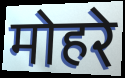
मोहरे